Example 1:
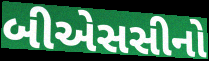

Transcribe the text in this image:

બીએસસીનો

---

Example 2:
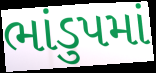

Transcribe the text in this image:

ભાંડુપમાં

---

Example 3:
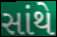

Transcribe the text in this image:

સાંથે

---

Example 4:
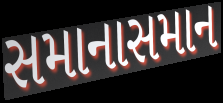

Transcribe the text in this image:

સમાનાસમાન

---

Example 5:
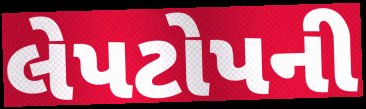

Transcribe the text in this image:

લેપટોપની